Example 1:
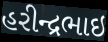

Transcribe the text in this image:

હરીન્દ્રભાઇ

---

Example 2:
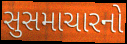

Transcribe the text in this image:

સુસમાચારનો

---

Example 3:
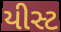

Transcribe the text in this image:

યીસ્ટ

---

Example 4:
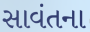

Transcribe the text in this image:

સાવંતના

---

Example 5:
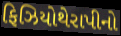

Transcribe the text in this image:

ફિઝિયોથેરાપીનો